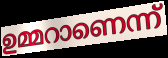
ഉമ്മറാണെന്ന്